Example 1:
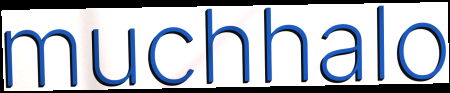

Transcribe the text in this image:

muchhalo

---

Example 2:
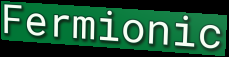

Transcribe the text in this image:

Fermionic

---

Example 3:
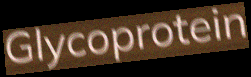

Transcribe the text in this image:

Glycoprotein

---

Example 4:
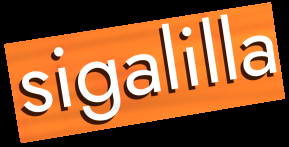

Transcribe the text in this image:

sigalilla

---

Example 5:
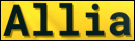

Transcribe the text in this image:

Allia